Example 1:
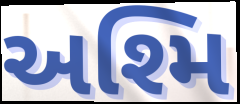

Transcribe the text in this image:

અશ્મિ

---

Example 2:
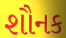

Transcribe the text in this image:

શૌનક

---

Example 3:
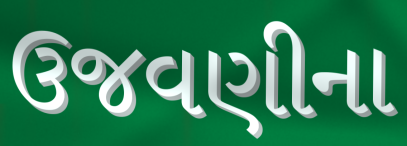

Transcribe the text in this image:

ઉજવણીના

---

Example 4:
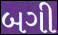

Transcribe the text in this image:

બગી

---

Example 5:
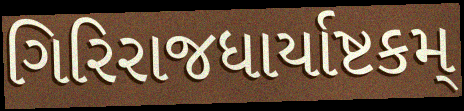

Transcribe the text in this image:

ગિરિરાજધાર્યાષ્ટકમ્